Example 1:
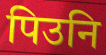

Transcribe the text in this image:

पिउनि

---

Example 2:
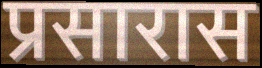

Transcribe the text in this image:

प्रसारास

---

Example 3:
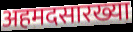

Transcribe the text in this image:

अहमदसारख्या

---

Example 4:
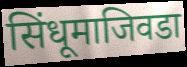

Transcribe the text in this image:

सिंधूमाजिवडा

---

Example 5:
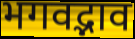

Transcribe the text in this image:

भगवद्भाव